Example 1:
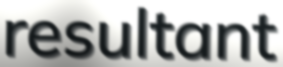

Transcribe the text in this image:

resultant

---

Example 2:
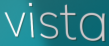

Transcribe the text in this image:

vista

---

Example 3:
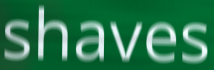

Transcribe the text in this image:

shaves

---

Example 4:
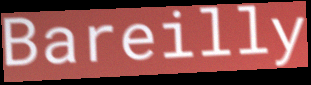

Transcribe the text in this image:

Bareilly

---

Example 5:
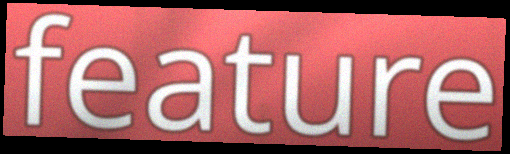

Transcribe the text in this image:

feature